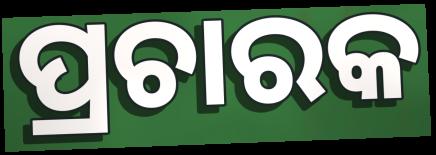
ପ୍ରଚାରକ